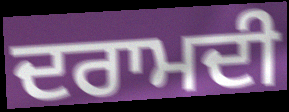
ਦਰਾਮਦੀ